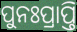
ପୁନଃପ୍ରାପ୍ତି